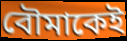
বৌমাকেই